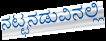
ನಟ್ಟನಡುವಿನಲ್ಲಿ